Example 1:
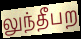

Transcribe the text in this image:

லுந்தீபற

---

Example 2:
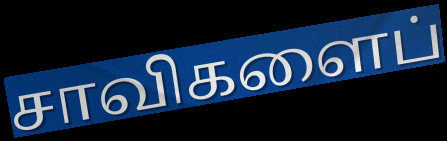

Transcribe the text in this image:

சாவிகளைப்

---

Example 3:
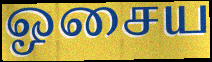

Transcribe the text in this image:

ஓசைய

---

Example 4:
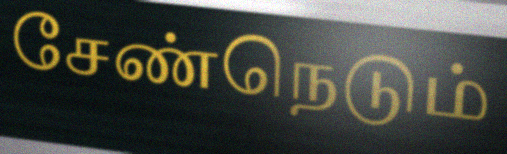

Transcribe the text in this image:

சேண்நெடும்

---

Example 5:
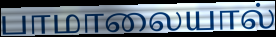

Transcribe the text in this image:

பாமாலையால்